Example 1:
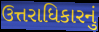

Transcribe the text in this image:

ઉત્તરાધિકારનું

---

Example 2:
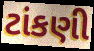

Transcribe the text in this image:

ટાંકણી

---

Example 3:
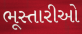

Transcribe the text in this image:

ભૂસ્તારીઓ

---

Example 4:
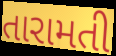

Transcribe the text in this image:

તારામતી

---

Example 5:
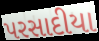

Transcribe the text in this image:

પરસાદીયા